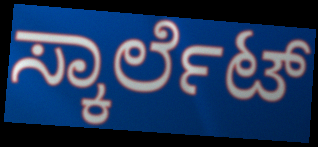
ಸ್ಕಾರ್ಲೆಟ್